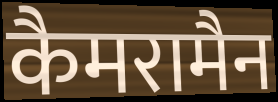
कैमरामैन